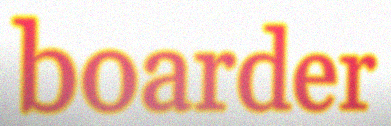
boarder